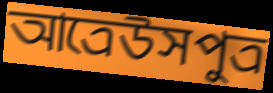
আত্রেউসপুত্র